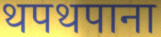
थपथपाना